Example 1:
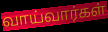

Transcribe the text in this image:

வாய்வார்கள்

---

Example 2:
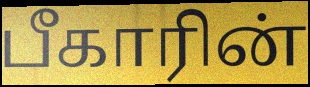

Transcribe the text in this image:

பீகாரின்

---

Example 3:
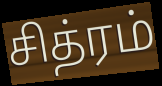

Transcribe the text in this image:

சித்ரம்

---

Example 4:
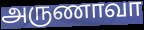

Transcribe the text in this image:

அருணாவா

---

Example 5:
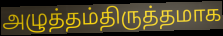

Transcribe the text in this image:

அழுத்தம்திருத்தமாக